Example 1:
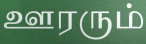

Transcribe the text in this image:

ஊரரும்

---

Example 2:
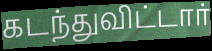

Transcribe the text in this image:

கடந்துவிட்டார்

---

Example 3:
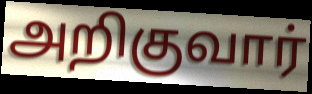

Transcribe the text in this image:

அறிகுவார்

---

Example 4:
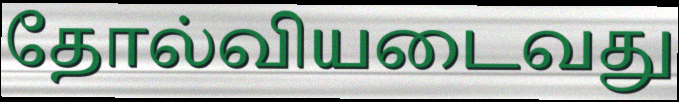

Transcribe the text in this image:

தோல்வியடைவது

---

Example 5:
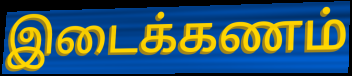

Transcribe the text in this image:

இடைக்கணம்